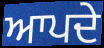
ਆਪਦੇ